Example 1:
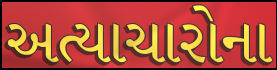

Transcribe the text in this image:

અત્યાચારોના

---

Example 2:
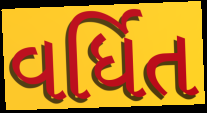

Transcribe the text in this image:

વર્ધિત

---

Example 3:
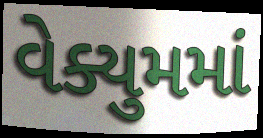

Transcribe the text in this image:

વેક્યુમમાં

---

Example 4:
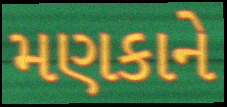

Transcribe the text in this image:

મણકાને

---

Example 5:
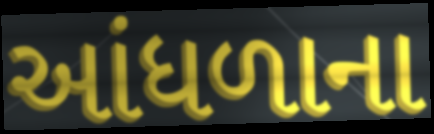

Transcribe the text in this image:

આંધળાના